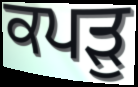
ਕਪੜੁ